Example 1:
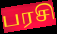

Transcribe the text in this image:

பரசி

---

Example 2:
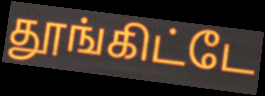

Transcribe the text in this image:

தூங்கிட்டே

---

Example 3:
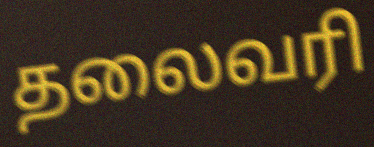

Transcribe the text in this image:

தலைவரி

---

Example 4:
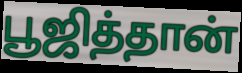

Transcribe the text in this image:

பூஜித்தான்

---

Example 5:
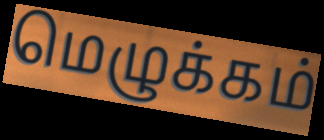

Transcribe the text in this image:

மெழுக்கம்